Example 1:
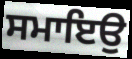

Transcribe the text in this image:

ਸਮਾਇਉ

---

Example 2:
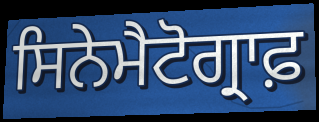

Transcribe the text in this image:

ਸਿਨੇਮੈਟੋਗ੍ਰਾਫ਼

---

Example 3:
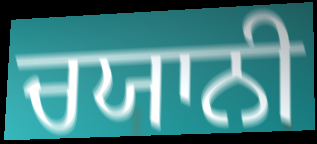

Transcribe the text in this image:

ਚਯਾਨੀ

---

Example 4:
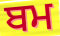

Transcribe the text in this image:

ਬਮ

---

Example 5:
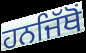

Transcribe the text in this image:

ਹਨਜਿੱਥੋਂ